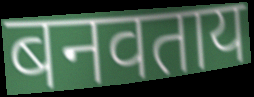
बनवताय